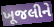
ખૂજલીને